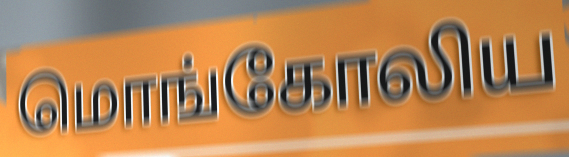
மொங்கோலிய